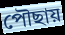
পৌছায়